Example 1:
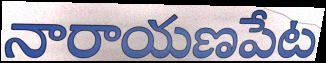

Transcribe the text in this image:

నారాయణపేట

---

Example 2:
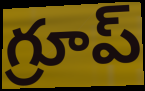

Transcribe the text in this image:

గ్రూప్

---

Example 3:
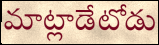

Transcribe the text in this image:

మాట్లాడేటోడు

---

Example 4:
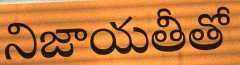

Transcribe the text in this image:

నిజాయతీతో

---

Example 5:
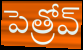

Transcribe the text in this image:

పెత్రోవ్